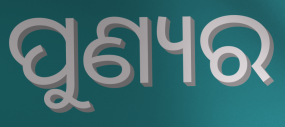
ପୁଣ୍ୟର